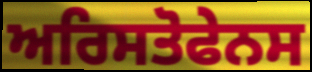
ਅਰਿਸਤੋਫੇਨਸ